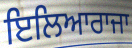
ਇਲਿਆਰਾਜਾ